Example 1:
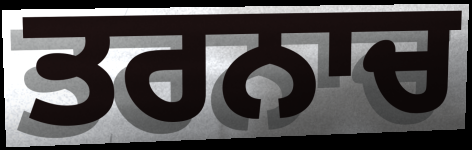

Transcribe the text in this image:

ਤਰਨਾਚ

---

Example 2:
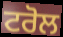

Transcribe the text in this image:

ਟਰੋਲ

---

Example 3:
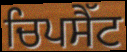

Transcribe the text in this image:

ਚਿਪਸੈੱਟ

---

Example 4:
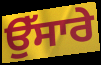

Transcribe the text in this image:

ਉੱਸਾਰੇ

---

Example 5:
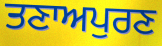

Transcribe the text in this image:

ਤਣਾਅਪੁਰਣ